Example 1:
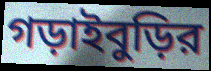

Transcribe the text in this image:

গড়াইবুড়ির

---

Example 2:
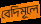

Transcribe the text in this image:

বেদিমূলে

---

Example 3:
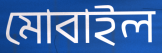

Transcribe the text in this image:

মোবাইল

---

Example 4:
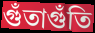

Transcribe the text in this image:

গুঁতাগুঁতি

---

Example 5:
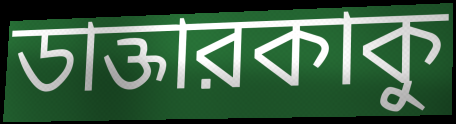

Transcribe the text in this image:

ডাক্তারকাকু